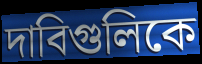
দাবিগুলিকে